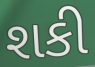
શકી